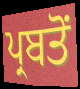
ਪ੍ਰਬਤੋਂ